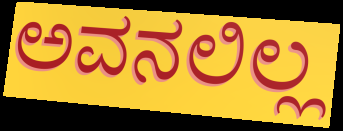
ಅವನಲಿಲ್ಲ